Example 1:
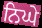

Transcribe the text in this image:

ਨਿਘੇ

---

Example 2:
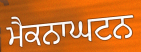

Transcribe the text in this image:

ਮੈਕਨਾਘਟਨ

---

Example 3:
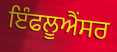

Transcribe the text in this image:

ਇੰਫਲੂਐਂਸਰ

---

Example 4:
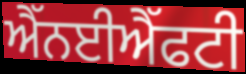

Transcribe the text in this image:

ਐੱਨਈਐੱਫਟੀ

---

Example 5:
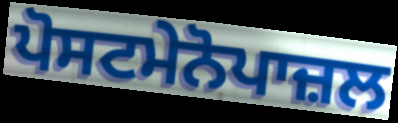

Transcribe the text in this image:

ਪੋਸਟਮੇਨੋਪਾਜ਼ਲ